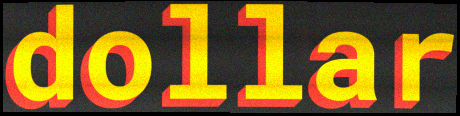
dollar